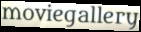
moviegallery